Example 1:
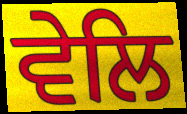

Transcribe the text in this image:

ਵੇਲਿ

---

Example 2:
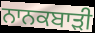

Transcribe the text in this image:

ਨਾਨਕਬਾੜੀ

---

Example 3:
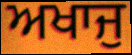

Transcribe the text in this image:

ਅਖਾਜੁ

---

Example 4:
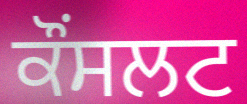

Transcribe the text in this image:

ਕੌਂਸਲਟ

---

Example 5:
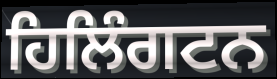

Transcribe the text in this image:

ਹਿਲਿੰਗਟਨ